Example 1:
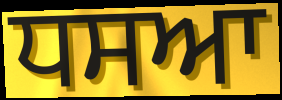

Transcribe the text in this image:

ਧਸਆ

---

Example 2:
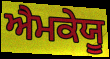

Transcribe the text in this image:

ਐਮਕੇਯੂ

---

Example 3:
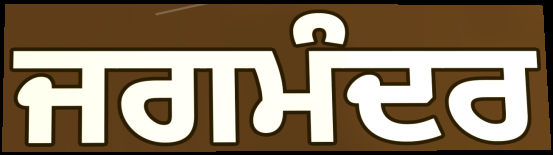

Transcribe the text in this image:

ਜਗਮੰਦਰ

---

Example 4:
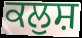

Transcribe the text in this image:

ਕਲੁਸ਼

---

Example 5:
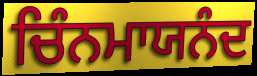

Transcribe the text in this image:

ਚਿੰਨਮਾਯਨੰਦ